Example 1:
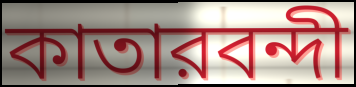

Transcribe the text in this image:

কাতারবন্দী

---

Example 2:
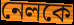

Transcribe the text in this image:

নেলকে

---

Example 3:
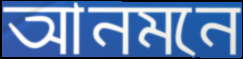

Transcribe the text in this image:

আনমনে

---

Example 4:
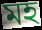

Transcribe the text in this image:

মহ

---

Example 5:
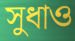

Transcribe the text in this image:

সুধাও